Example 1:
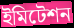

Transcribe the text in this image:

ইমিটেশন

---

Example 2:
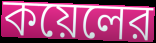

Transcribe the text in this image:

কয়েলের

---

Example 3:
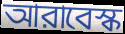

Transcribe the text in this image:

আরাবেস্ক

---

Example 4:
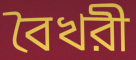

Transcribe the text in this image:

বৈখরী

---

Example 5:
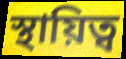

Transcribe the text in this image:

স্থায়িত্ব